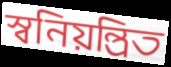
স্বনিয়ন্ত্রিত